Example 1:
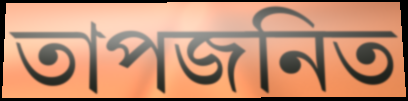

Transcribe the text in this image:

তাপজনিত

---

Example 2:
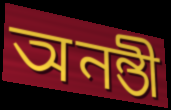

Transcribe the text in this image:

অনন্তী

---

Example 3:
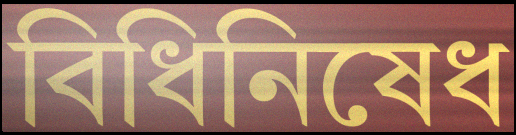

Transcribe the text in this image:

বিধিনিষেধ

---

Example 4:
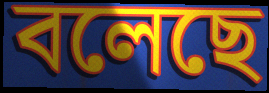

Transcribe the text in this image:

বলেছে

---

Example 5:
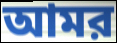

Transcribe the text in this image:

আমর